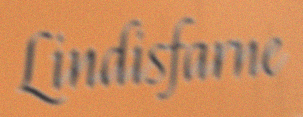
Lindisfarne